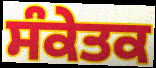
ਸੰਕੇਤਕ